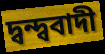
দ্বন্দ্ববাদী